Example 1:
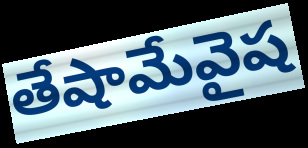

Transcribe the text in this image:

తేషామేవైష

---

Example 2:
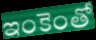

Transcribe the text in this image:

ఇంకెంతో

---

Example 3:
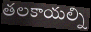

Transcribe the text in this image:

తలకాయల్ని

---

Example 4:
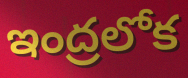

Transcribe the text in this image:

ఇంద్రలోక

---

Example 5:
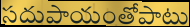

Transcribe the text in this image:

సదుపాయంతోపాటు